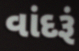
વાંદરૂં